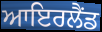
ਆਇਰਲੈੰਡ